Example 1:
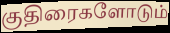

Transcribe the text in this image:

குதிரைகளோடும்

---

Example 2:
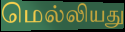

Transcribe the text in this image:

மெல்லியது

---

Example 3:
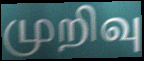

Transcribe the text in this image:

முறிவு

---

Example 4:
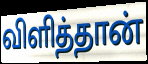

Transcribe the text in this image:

விளித்தான்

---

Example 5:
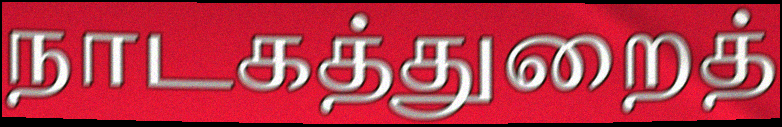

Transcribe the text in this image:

நாடகத்துறைத்